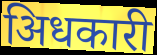
अिधकारी